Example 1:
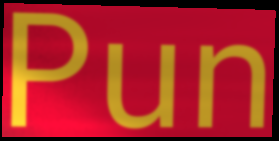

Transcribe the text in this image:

Pun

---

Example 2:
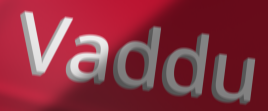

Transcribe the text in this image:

Vaddu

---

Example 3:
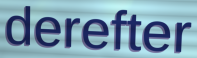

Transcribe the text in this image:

derefter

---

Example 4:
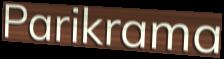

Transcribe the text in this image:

Parikrama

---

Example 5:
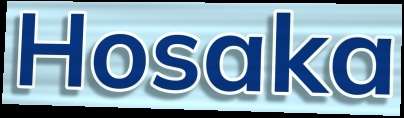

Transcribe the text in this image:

Hosaka